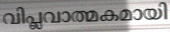
വിപ്ലവാത്മകമായി